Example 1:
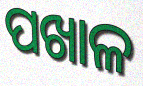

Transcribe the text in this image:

ପଖାଳ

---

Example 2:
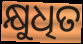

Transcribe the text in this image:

କ୍ଷୁଧିତ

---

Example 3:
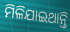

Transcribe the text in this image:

ମିଳିଯାଇଥାନ୍ତି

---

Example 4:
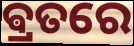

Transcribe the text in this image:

ଵ୍ରତରେ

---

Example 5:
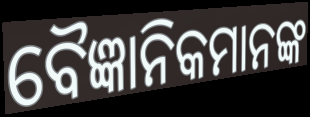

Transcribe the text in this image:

ବୈଜ୍ଞାନିକମାନଙ୍କ